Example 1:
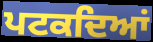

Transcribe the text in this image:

ਪਟਕਦਿਆਂ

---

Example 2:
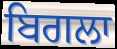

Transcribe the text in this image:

ਬਿਗਲਾ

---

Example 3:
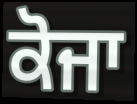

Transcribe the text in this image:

ਕੋਜਾ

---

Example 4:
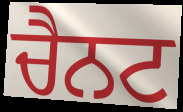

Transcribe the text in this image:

ਚੈਨਟ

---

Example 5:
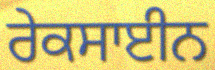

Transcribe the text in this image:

ਰੇਕਸਾਈਨ